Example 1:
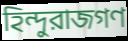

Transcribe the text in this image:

হিন্দুরাজগণ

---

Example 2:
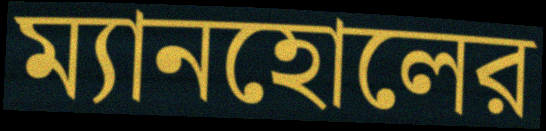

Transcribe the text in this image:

ম্যানহোলের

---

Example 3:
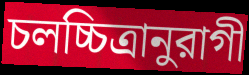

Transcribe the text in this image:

চলচ্চিত্রানুরাগী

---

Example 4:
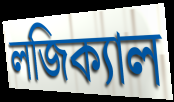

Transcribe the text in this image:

লজিক্যাল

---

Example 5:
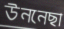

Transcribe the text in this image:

উননেছা